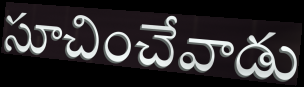
సూచించేవాడు